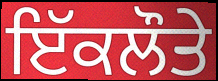
ਇੱਕਲੌਤੇ